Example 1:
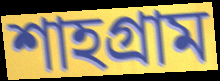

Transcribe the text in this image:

শাহগ্রাম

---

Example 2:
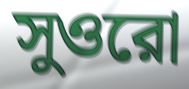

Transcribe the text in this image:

সুওরো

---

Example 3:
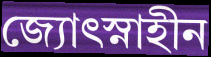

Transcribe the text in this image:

জ্যোৎস্নাহীন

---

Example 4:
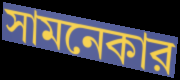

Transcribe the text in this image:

সামনেকার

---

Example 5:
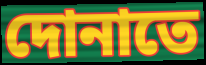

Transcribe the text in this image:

দোনাতে